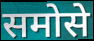
समोसे